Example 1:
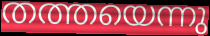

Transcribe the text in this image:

തത്തയെന്നു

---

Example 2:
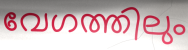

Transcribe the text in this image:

വേഗത്തിലും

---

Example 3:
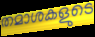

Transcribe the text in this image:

തമാശകളുടെ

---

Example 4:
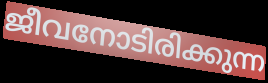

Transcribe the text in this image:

ജീവനോടിരിക്കുന്ന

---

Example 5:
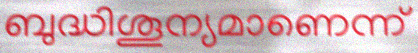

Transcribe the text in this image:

ബുദ്ധിശൂന്യമാണെന്ന്